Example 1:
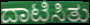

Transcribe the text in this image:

ದಾಟಿಸಿತು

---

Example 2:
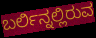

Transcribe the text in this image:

ಬರ್ಲಿನ್ನಲ್ಲಿರುವ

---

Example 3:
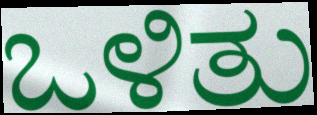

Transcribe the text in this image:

ಒಳಿತು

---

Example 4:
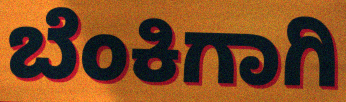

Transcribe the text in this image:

ಬೆಂಕಿಗಾಗಿ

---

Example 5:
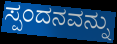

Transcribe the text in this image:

ಸ್ಪಂದನವನ್ನು